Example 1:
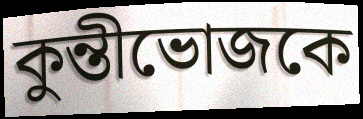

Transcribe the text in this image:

কুন্তীভোজকে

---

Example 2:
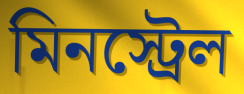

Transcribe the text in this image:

মিনস্ট্রেল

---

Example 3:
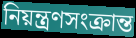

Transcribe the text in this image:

নিয়ন্ত্রণসংক্রান্ত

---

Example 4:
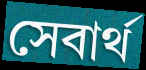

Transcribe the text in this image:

সেবার্থ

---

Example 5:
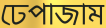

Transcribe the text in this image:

ঢেপাজাম